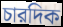
চারদিক